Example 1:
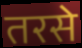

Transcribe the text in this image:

तरसे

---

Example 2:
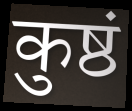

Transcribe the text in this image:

कुष्ठं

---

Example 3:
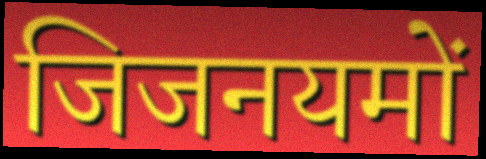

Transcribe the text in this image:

जिजनयमों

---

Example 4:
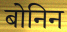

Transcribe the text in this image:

बोनिन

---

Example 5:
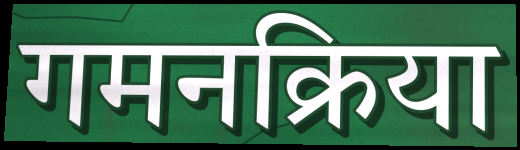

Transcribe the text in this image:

गमनक्रिया